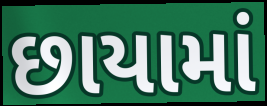
છાયામાં